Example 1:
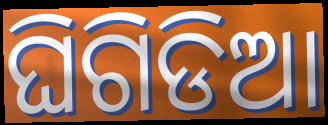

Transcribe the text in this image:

ଘିଗିଡିଆ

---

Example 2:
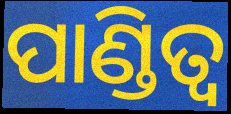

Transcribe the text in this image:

ପାଣ୍ଡିତ୍ୱ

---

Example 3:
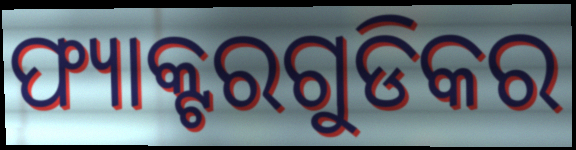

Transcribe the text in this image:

ଫ୍ୟାକ୍ଟରଗୁଡିକର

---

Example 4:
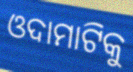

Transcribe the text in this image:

ଓଦାମାଟିକୁ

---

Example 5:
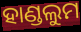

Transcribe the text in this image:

ହାଣ୍ଡଲୁମ